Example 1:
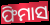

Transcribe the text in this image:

ଫିମାସ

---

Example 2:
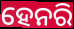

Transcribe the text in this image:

ହେନରି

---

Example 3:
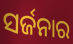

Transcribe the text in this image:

ସର୍ଜନାର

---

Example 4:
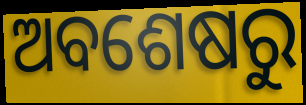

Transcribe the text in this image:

ଅବଶେଷରୁ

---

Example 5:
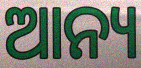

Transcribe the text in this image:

ଆନ୍ୟ